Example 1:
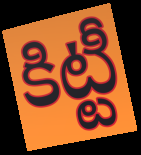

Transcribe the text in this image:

కిట్టీ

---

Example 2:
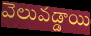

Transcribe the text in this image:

వెలువడ్డాయి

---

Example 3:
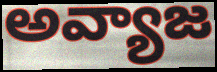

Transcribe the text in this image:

అవ్యాజ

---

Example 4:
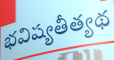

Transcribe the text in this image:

భవిష్యతీత్యథ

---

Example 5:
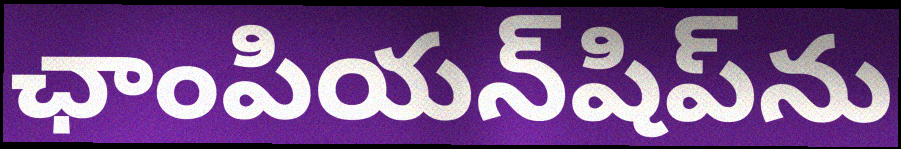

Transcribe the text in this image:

ఛాంపియన్‌షిప్‌ను